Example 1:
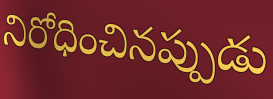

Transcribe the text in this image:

నిరోధించినప్పుడు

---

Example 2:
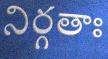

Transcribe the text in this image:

నిర్గతాః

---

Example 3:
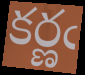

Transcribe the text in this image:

కర్ణఁ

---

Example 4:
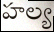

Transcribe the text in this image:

హల్య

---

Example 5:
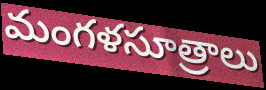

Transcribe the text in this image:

మంగళసూత్రాలు